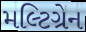
મલ્ટિગ્રેન